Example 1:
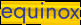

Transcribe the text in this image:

equinox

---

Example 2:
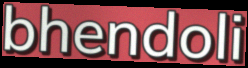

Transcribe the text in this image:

bhendoli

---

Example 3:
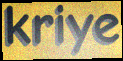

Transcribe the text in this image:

kriye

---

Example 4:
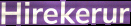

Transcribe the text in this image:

Hirekerur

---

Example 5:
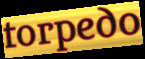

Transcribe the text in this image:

torpedo